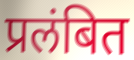
प्रलंबित